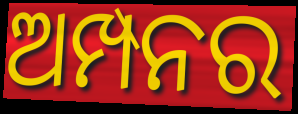
ଅମ୍ପନର